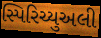
સ્પિરિચ્યુઅલી